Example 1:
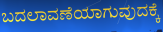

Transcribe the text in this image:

ಬದಲಾವಣೆಯಾಗುವುದಕ್ಕೆ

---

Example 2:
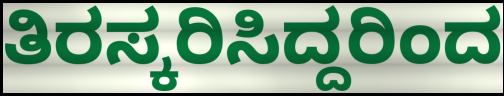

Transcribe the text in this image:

ತಿರಸ್ಕರಿಸಿದ್ದರಿಂದ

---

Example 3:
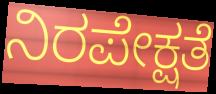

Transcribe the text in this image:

ನಿರಪೇಕ್ಷತೆ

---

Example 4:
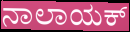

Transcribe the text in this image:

ನಾಲಾಯಕ್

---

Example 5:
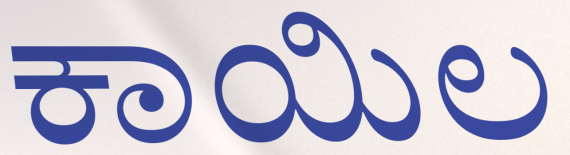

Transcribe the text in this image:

ಕಾಯಿಲ